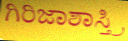
ಗಿರಿಜಾಶಾಸ್ತ್ರಿ